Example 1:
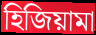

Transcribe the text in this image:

হিজিয়ামা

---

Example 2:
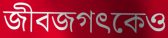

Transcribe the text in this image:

জীবজগৎকেও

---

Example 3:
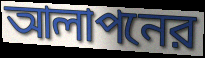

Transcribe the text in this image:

আলাপনের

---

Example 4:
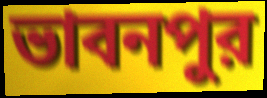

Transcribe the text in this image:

ভাবনপুর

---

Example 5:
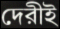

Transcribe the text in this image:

দেরীই